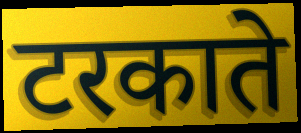
टरकाते